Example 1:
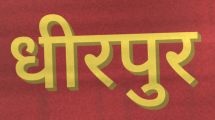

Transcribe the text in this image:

धीरपुर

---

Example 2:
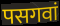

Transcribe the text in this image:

पसगवां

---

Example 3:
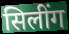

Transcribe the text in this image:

सिलींग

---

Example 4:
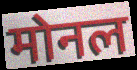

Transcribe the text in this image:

मोनल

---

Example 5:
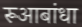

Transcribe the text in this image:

रूआबांधा